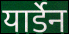
यार्डेन